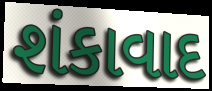
શંકાવાદ